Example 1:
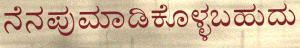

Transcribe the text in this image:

ನೆನಪುಮಾಡಿಕೊಳ್ಳಬಹುದು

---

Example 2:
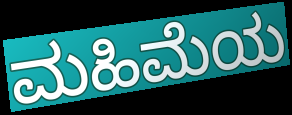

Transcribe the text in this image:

ಮಹಿಮೆಯ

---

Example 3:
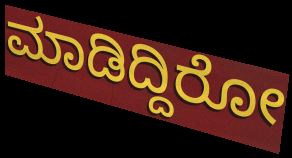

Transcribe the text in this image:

ಮಾಡಿದ್ದಿರೋ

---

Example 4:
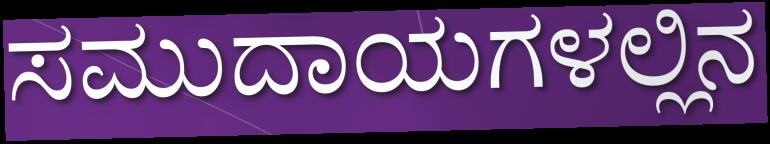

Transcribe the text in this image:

ಸಮುದಾಯಗಳಲ್ಲಿನ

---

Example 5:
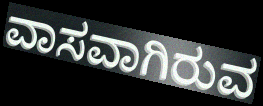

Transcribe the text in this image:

ವಾಸವಾಗಿರುವ